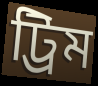
ট্ৰিম